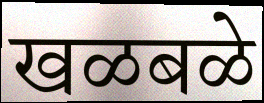
खळबळे